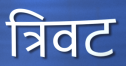
त्रिवट